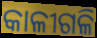
କାଳୀଗଳି